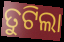
ତୁଟିଲା